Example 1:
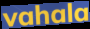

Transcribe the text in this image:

vahala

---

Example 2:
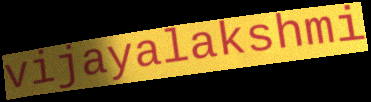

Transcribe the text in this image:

vijayalakshmi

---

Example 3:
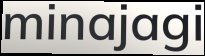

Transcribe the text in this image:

minajagi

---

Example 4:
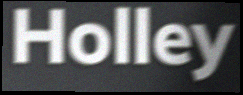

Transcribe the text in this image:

Holley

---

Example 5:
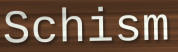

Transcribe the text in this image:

Schism